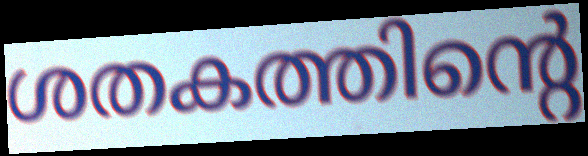
ശതകത്തിന്റെ